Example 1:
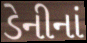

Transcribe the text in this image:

ડેનીનાં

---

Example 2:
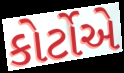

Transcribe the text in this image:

કોર્ટોએ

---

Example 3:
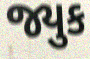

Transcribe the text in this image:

જ્યુક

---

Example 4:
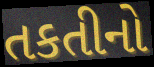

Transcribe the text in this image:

તકતીનો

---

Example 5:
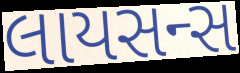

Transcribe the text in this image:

લાયસન્સ